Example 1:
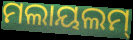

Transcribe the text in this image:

ମଲାୟଲମ୍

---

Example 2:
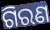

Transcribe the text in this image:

ଗିରଣ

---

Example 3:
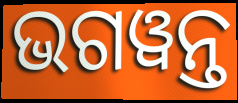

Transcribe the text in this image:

ଭଗୱନ୍ତ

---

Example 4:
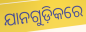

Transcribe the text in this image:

ଯାନଗୁଡ଼ିକରେ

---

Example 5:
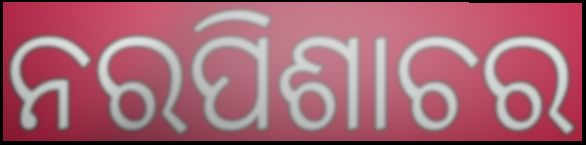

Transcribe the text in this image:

ନରପିଶାଚର